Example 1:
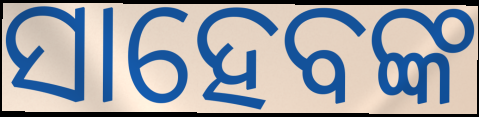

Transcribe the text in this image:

ସାହେବଙ୍କ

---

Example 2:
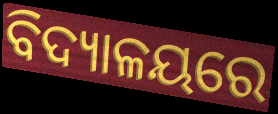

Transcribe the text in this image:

ବିଦ୍ଯାଳୟରେ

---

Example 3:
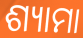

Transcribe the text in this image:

ଶ୍ୟାମା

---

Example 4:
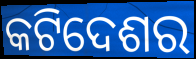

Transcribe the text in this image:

କଟିଦେଶର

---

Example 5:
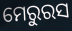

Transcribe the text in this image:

ମେରୁରସ